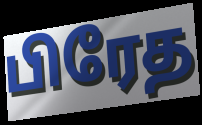
பிரேத